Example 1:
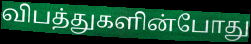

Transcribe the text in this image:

விபத்துகளின்போது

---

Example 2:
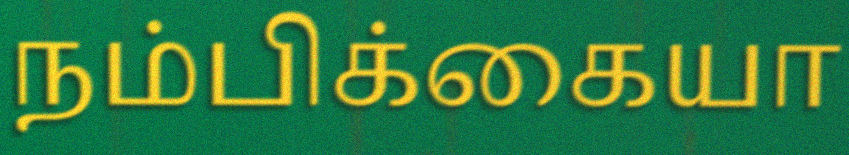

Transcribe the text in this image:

நம்பிக்கையா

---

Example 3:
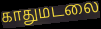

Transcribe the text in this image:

காதுமடலை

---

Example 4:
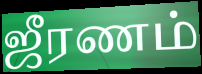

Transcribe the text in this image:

ஜீரணம்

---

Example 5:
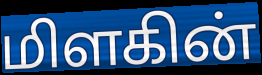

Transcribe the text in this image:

மிளகின்